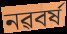
নৱবৰ্ষ